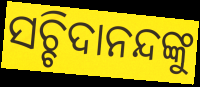
ସଚ୍ଚିଦାନନ୍ଦଙ୍କୁ